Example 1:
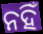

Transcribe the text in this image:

ନହିଁ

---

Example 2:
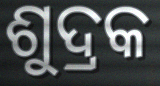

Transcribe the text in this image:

ଶୁଦ୍ରକ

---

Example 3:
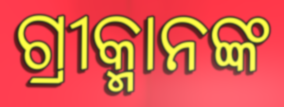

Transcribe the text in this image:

ଗ୍ରୀକ୍ମାନଙ୍କ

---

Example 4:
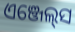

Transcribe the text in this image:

ଏଞ୍ଜେଲ୍‍ସ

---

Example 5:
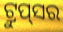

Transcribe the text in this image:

ଟ୍ରୁପ୍‌ସର